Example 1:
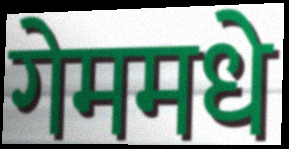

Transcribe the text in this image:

गेममधे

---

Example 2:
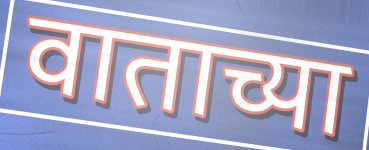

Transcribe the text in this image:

वाताच्या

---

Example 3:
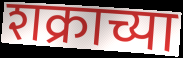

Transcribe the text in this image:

शक्राच्या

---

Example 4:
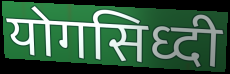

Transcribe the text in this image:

योगसिध्दी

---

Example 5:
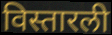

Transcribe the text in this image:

विस्तारली